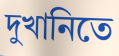
দুখানিতে